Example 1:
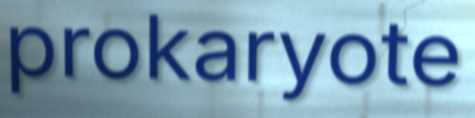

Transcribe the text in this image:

prokaryote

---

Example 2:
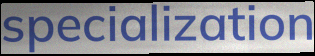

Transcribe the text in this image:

specialization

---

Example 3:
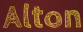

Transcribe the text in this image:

Alton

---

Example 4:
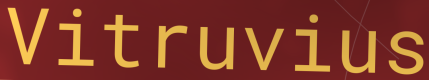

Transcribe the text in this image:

Vitruvius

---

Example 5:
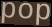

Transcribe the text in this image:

pop